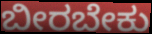
ಬೀರಬೇಕು